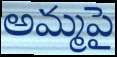
అమ్మపై